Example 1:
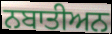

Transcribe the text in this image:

ਨਬਾਤੀਅਨ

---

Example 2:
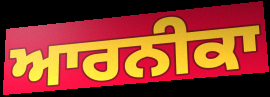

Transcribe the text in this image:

ਆਰਨੀਕਾ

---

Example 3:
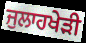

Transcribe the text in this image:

ਜੁਲਾਹਖੇੜੀ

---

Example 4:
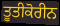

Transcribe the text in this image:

ਤੂਤੀਕੋਰੀਨ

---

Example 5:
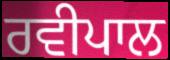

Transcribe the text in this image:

ਰਵੀਪਾਲ